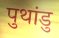
पुथांडु